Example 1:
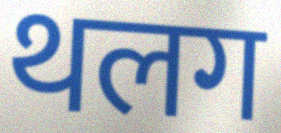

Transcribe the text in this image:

थलग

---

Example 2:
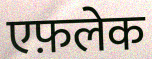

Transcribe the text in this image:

एफ़लेक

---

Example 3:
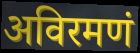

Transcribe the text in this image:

अविरमणं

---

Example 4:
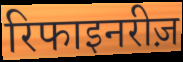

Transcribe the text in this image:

रिफाइनरीज़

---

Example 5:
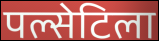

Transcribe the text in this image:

पल्सेटिला